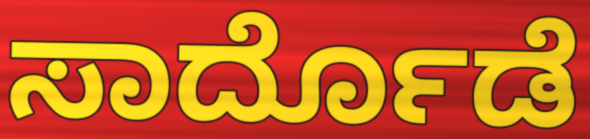
ಸಾರ್ದೊಡೆ